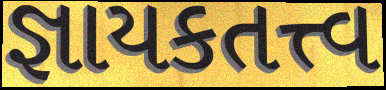
જ્ઞાયકતત્ત્વ